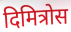
दिमित्रोस